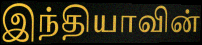
இந்தியாவின்